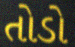
તોડો